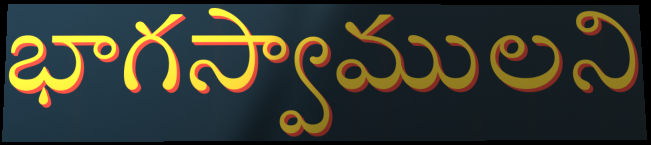
భాగస్వాములని